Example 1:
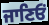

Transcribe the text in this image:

ਜਾਣਿਓਂ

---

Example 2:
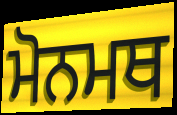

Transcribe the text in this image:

ਮੋਨਮਥ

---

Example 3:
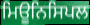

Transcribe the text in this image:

ਮਿਊਨਿਸਿਪਲ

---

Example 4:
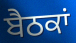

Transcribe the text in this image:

ਬੈਠਕਾਂ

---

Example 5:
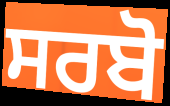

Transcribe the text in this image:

ਸਰਬੋ